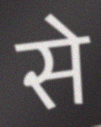
से